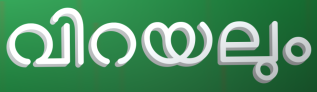
വിറയലും